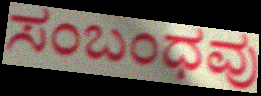
ಸಂಬಂಧವು